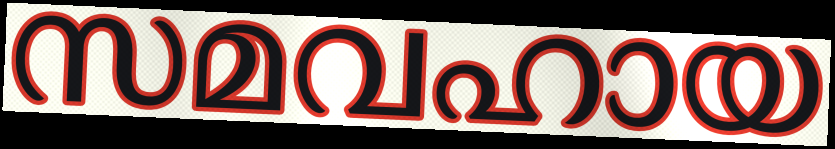
സമവഹായ